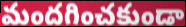
మందగించకుండా